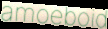
amoeboid